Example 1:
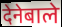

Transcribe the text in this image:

देनेबाले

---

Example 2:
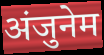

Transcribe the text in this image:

अंजुनेम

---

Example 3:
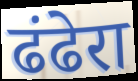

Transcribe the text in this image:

ढंढेरा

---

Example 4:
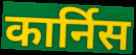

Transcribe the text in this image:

कार्निस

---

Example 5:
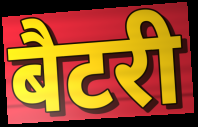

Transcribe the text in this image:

बैटरी